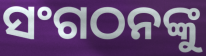
ସଂଗଠନଙ୍କୁ